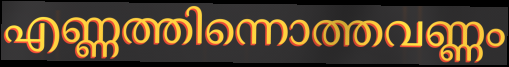
എണ്ണത്തിന്നൊത്തവണ്ണം